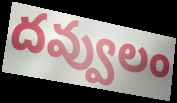
దవ్వులం